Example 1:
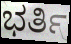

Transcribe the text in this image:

ಭರ್ತಿ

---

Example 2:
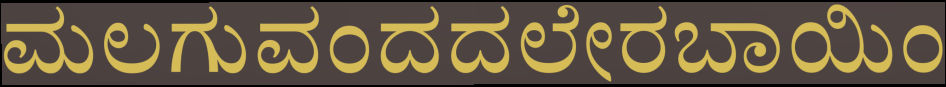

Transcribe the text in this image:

ಮಲಗುವಂದದಲೇರಬಾಯಿಂ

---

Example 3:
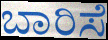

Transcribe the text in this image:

ಬಾರಿಸೆ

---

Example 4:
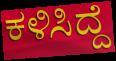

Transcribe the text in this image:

ಕಳಿಸಿದ್ದೆ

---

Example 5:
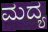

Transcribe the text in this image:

ಮದ್ಯ